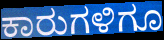
ಕಾರುಗಳಿಗೂ